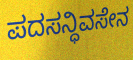
ಪದಸನ್ಧಿವಸೇನ